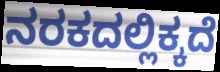
ನರಕದಲ್ಲಿಕ್ಕದೆ